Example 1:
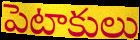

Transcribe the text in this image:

పెటాకులు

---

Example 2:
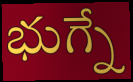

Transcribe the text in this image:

భుగ్నే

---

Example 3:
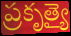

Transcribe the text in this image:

ప్రకృత్యై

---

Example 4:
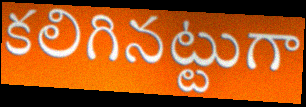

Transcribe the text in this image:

కలిగినట్టుగా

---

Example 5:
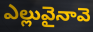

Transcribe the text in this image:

ఎల్లువైనావె